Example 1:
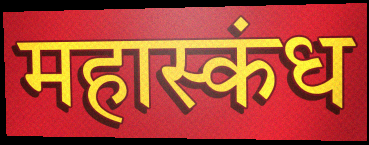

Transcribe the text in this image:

महास्कंध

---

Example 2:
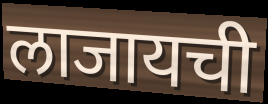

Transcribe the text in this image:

लाजायची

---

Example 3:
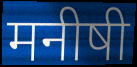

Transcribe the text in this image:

मनीषी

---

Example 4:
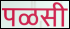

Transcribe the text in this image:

पळसी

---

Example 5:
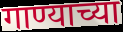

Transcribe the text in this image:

गाण्याच्या